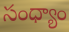
సంధ్యాం